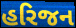
હરિજન